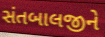
સંતબાલજીને